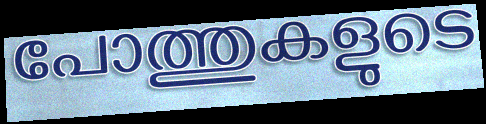
പോത്തുകളുടെ